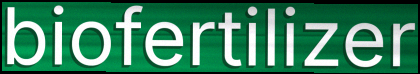
biofertilizer